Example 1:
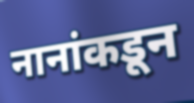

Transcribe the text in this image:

नानांकडून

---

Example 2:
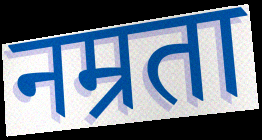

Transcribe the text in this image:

नम्रता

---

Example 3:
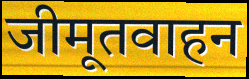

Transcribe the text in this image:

जीमूतवाहन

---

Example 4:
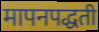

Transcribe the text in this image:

मापनपद्धती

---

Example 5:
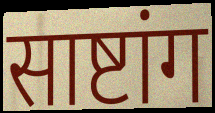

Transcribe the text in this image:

साष्टांग